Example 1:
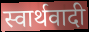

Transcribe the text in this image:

स्वार्थवादी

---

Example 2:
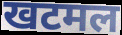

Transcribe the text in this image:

खटमल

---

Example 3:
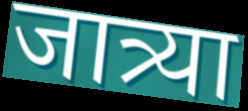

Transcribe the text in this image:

जात्र्या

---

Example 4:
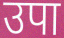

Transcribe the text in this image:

उपा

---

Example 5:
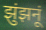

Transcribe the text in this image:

झुंझनूं